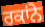
ਰਕਾਂਨੇ